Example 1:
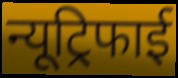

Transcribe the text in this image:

न्यूट्रिफाई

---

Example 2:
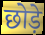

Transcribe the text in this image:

छोड़े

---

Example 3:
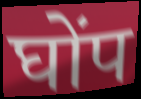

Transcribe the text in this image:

घोंप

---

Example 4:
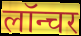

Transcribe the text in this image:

लॉन्चर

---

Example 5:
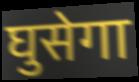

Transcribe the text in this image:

घुसेगा